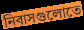
নিবাসগুলোতে